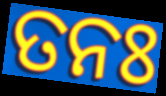
ତନଃ